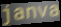
janva